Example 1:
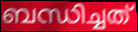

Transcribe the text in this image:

ബന്ധിച്ചത്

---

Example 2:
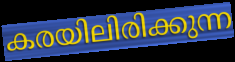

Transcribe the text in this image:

കരയിലിരിക്കുന്ന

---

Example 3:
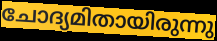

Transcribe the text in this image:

ചോദ്യമിതായിരുന്നു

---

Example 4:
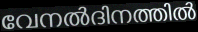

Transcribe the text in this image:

വേനൽദിനത്തിൽ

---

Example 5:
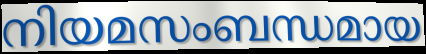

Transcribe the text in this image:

നിയമസംബന്ധമായ